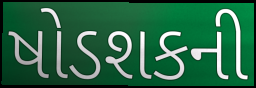
ષોડશકની